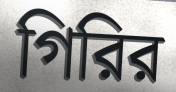
গিরির